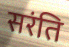
सरंति